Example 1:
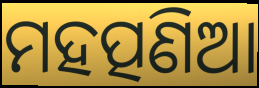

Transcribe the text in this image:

ମହତ୍ପଣିଆ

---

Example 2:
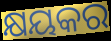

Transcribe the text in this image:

କ୍ଷୟକର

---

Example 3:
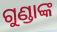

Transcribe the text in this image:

ଗୁଣ୍ଡାଙ୍କ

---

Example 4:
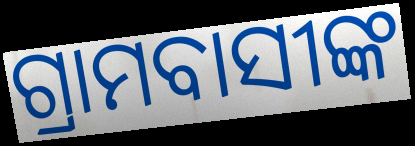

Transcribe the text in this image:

ଗ୍ରାମବାସୀଙ୍କ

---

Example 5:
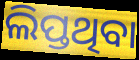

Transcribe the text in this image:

ଲିପ୍ତଥିବା